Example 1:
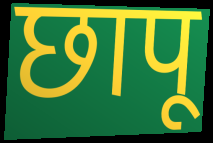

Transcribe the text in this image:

छापू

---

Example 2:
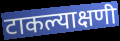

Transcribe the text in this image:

टाकल्याक्षणी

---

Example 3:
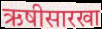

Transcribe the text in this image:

ऋषीसारखा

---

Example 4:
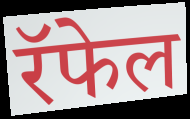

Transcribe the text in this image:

रॅफेल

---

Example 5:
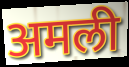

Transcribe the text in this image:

अमली